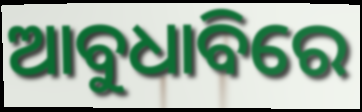
ଆବୁଧାବିରେ